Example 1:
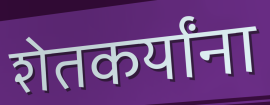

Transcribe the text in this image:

शेतकर्यांना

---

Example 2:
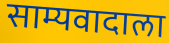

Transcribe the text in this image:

साम्यवादाला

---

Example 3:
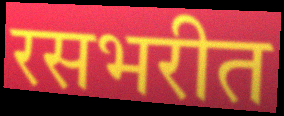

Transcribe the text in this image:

रसभरीत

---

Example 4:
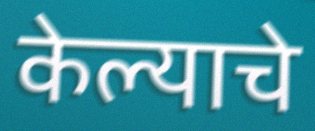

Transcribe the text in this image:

केल्याचे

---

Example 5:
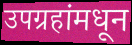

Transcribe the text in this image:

उपग्रहांमधून